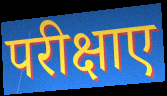
परीक्षाए